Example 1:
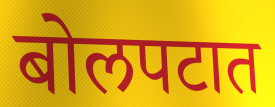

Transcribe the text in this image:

बोलपटात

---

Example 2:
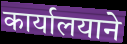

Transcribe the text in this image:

कार्यालयाने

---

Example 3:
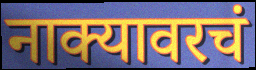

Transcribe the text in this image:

नाक्यावरचं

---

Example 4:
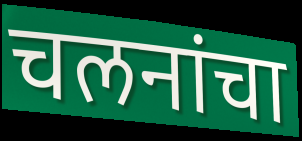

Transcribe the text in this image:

चलनांचा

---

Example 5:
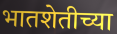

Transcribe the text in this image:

भातशेतीच्या